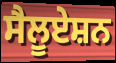
ਸੈਲੂਏਸ਼ਨ